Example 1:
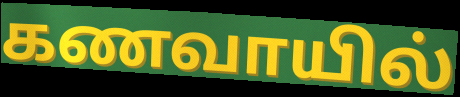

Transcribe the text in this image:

கணவாயில்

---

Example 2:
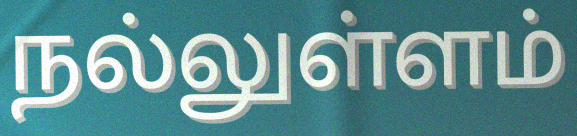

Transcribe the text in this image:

நல்லுள்ளம்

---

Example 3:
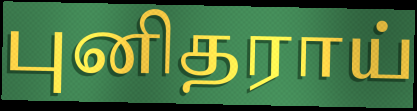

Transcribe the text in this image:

புனிதராய்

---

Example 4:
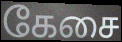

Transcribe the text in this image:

கேசை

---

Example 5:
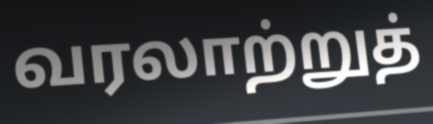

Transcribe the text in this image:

வரலாற்றுத்